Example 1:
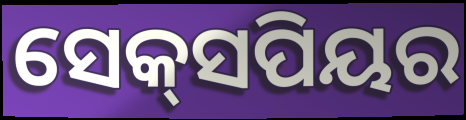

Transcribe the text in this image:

ସେକ୍‌ସପିୟର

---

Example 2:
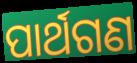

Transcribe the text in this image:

ପାର୍ଥଗଣ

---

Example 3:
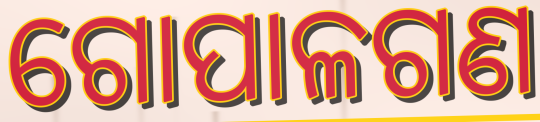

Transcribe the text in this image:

ଗୋପାଳଗଣ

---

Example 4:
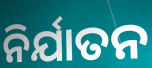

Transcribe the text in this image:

ନିର୍ଯାତନ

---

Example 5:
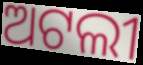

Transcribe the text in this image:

ଅଟଲୀ